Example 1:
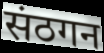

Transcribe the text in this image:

संठगन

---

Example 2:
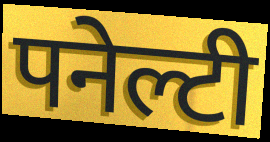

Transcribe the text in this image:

पनेल्टी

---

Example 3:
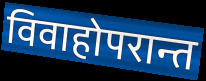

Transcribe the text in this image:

विवाहोपरान्त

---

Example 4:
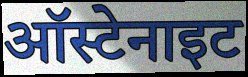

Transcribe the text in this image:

ऑस्टेनाइट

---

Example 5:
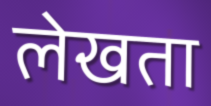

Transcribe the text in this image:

लेखता